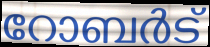
റോബർട്